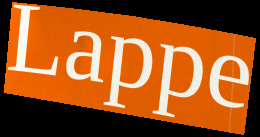
Lappe